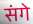
संगे